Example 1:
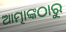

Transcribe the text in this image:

ଆତ୍ମାଙ୍କଠାରୁ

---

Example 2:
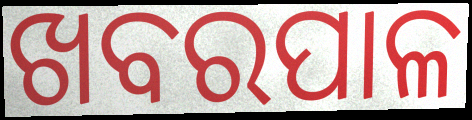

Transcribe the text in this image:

ଖବରପାଳ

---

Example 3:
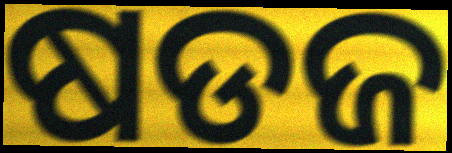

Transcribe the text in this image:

ଷଡଜ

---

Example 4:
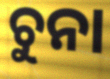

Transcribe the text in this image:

ଚୁନା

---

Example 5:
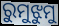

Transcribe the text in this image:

ରୁମୁଝୁମୁ